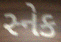
સ્નેક